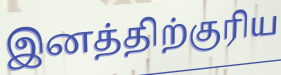
இனத்திற்குரிய